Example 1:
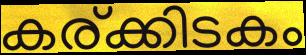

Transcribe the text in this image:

കര്ക്കിടകം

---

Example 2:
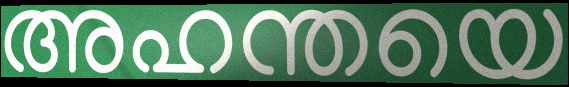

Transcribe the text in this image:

അഹന്തയെ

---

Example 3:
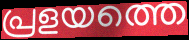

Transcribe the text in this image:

പ്രളയത്തെ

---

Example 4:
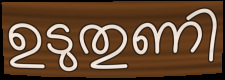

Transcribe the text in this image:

ഉടുതുണി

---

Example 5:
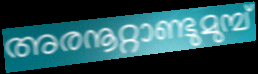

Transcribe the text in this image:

അരനൂറ്റാണ്ടുമുമ്പ്